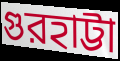
গুরহাট্টা